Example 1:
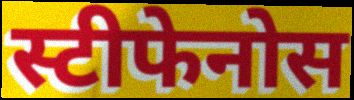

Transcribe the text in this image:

स्टीफेनोस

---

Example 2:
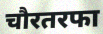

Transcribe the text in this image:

चौरतरफा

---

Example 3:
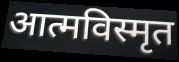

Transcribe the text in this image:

आत्मविस्मृत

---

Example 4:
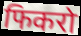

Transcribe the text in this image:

फिकरो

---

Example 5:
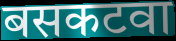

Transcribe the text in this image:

बसकटवा